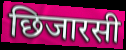
छिजारसी